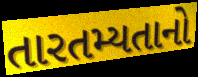
તારતમ્યતાનો